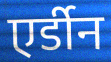
एर्डीन